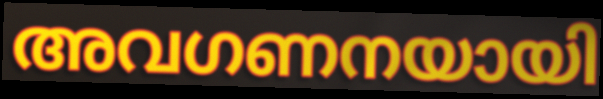
അവഗണനയായി